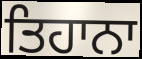
ਤਿਹਾਨਾ